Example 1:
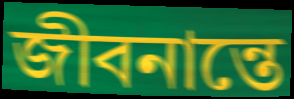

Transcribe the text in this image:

জীবনান্তে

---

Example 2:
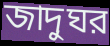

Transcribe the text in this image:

জাদুঘর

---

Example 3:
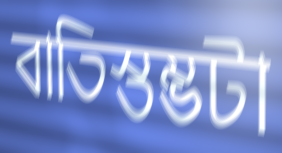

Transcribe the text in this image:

বাতিস্তম্ভটা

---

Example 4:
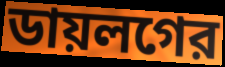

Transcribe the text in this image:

ডায়লগের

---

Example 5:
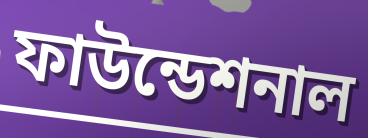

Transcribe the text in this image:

ফাউন্ডেশনাল